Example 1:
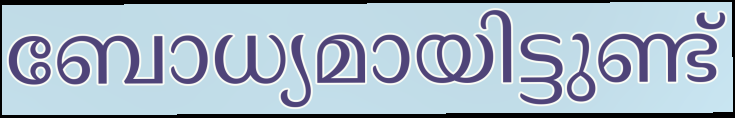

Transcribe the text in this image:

ബോധ്യമായിട്ടുണ്ട്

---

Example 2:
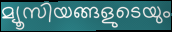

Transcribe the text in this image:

മ്യൂസിയങ്ങളുടെയും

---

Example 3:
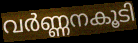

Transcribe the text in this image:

വർണ്ണനകൂടി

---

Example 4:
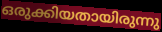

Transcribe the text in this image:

ഒരുക്കിയതായിരുന്നു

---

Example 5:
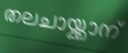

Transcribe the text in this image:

തലചായ്ക്കാന്